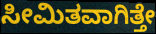
ಸೀಮಿತವಾಗಿತ್ತೇ